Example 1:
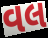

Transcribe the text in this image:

વલ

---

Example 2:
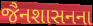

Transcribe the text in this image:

જૈનશાસનના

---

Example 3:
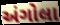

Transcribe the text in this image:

અંગોલા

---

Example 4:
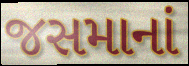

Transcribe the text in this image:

જસમાનાં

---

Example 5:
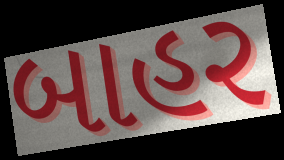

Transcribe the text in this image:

બાહર